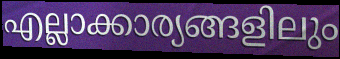
എല്ലാക്കാര്യങ്ങളിലും